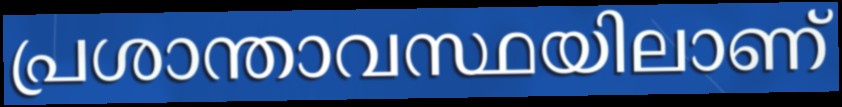
പ്രശാന്താവസ്ഥയിലാണ്